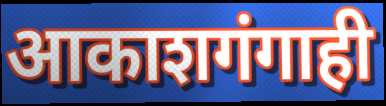
आकाशगंगाही